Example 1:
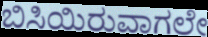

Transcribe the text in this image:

ಬಿಸಿಯಿರುವಾಗಲೇ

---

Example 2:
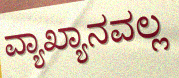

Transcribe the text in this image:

ವ್ಯಾಖ್ಯಾನವಲ್ಲ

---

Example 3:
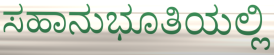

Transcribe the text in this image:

ಸಹಾನುಭೂತಿಯಲ್ಲಿ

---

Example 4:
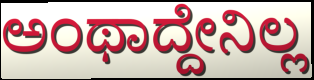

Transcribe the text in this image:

ಅಂಥಾದ್ದೇನಿಲ್ಲ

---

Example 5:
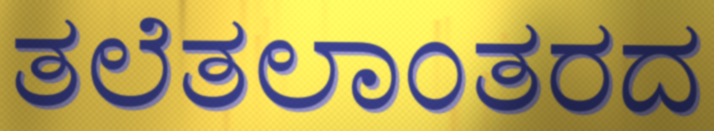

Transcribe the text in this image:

ತಲೆತಲಾಂತರದ